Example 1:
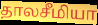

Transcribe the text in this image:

தாலசீமியா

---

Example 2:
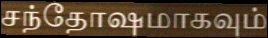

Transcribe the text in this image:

சந்தோஷமாகவும்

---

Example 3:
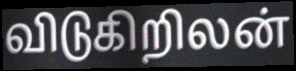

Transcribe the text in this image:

விடுகிறிலன்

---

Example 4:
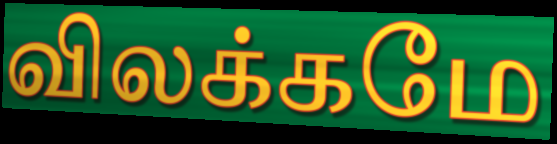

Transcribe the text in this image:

விலக்கமே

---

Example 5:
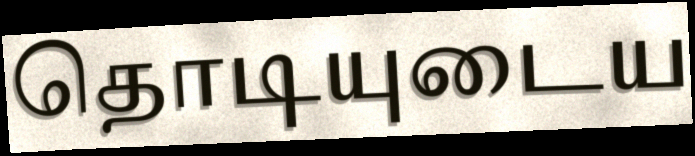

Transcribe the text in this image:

தொடியுடைய